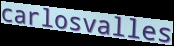
carlosvalles